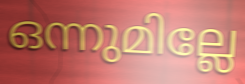
ഒന്നുമില്ലേ